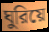
ঘুরিয়ে